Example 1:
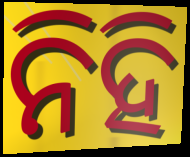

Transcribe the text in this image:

ନିହି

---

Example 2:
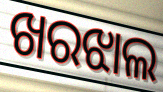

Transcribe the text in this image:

ଖରଝାଲ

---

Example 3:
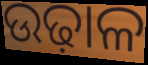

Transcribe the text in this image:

ଉଢ଼ାଳ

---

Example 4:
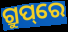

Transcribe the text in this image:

ଗ୍ରୁପ୍‌ରେ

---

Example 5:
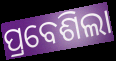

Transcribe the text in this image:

ପ୍ରବେଶିଲା